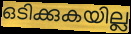
ഒടിക്കുകയില്ല